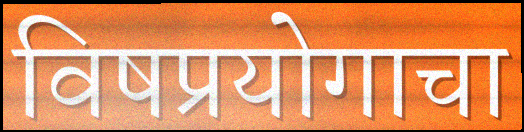
विषप्रयोगाचा